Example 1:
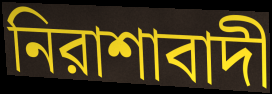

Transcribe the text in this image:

নিরাশাবাদী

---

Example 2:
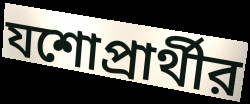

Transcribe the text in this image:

যশোপ্রার্থীর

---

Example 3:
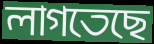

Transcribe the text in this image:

লাগতেছে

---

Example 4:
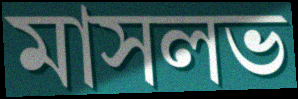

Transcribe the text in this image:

মাসলভ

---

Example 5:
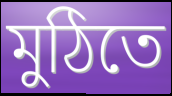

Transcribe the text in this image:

মুঠিতে